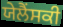
ਯੇਲੈਂਸਕੀ